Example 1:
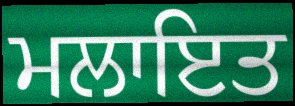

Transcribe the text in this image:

ਮਲਾਇਤ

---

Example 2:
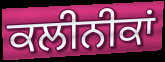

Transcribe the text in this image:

ਕਲੀਨੀਕਾਂ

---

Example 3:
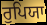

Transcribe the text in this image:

ਰੁਪਿਯਾ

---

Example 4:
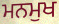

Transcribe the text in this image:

ਮਨਮੁਖ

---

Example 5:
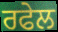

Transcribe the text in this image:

ਰਫੇਲ